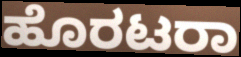
ಹೊರಟರಾ